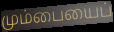
மும்பையைப்